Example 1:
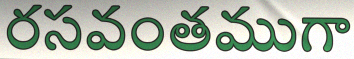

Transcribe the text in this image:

రసవంతముగా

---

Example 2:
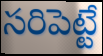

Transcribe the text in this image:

సరిపెట్టే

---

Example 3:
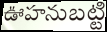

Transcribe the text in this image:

ఊహనుబట్టి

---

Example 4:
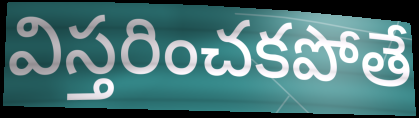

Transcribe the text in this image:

విస్తరించకపోతే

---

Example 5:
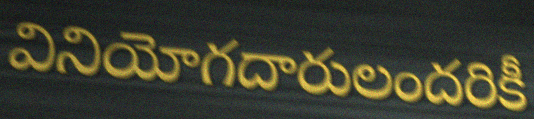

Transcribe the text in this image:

వినియోగదారులందరికీ